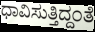
ಧಾವಿಸುತ್ತಿದ್ದಂತೆ